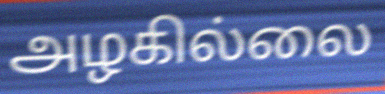
அழகில்லை